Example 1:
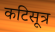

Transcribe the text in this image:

कटिसूत्र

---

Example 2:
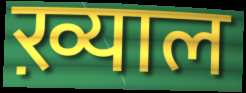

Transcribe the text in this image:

ख़्याल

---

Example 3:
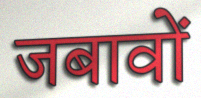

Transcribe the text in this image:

जबावों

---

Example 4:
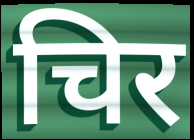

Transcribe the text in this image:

चिर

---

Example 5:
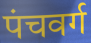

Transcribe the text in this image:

पंचवर्ग